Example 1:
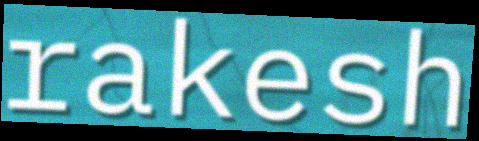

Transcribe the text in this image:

rakesh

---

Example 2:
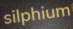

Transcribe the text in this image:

silphium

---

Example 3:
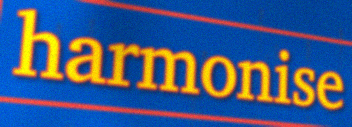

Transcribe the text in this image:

harmonise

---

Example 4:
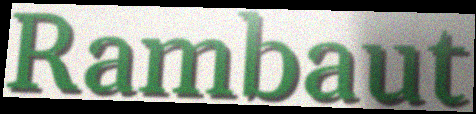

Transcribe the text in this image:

Rambaut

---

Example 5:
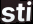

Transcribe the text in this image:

sti